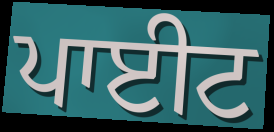
ਪਾਈਟ